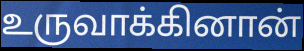
உருவாக்கினான்